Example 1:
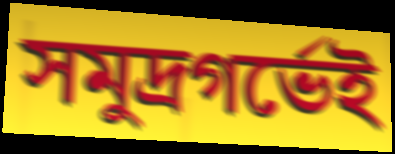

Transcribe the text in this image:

সমুদ্রগর্ভেই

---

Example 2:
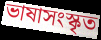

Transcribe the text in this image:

ভাষাসংস্কৃত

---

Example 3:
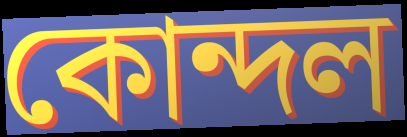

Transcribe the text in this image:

কোন্দল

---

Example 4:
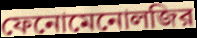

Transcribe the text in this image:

ফেনোমেনোলজির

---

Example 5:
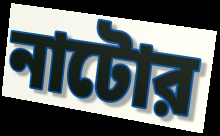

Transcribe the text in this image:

নাটোর